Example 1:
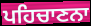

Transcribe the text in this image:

ਪਹਿਚਾਣਨਾ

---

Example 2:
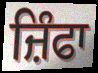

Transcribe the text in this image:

ਜ਼ਿੰਫਾ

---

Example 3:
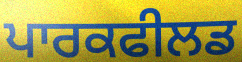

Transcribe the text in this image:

ਪਾਰਕਫੀਲਡ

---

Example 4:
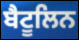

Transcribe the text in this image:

ਬੈਟੂਲਿਨ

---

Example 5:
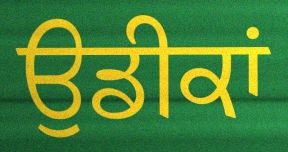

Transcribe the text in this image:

ਉਡੀਕਾਂ